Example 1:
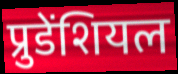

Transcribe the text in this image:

प्रुडेंशियल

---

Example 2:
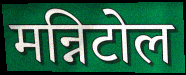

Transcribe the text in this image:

मन्निटोल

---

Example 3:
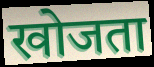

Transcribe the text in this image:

खोजता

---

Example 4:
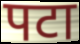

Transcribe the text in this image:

पटा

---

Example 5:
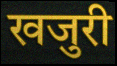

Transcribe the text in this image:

खजुरी